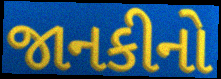
જાનકીનો